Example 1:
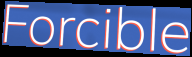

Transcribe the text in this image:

Forcible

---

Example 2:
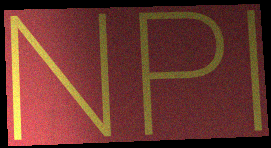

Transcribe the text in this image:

NPI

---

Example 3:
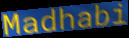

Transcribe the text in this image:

Madhabi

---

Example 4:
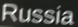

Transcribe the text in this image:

Russia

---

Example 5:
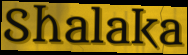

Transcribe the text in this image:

Shalaka